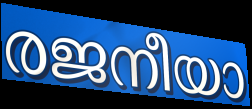
രജനീയാ